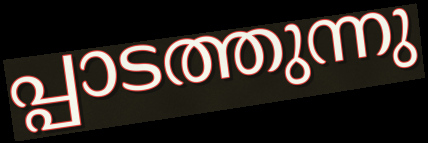
പ്പാടത്തുന്നു